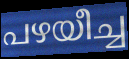
പഴയീച്ച